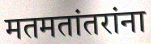
मतमतांतरांना